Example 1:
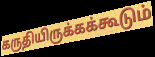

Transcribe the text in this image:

கருதியிருக்கக்கூடும்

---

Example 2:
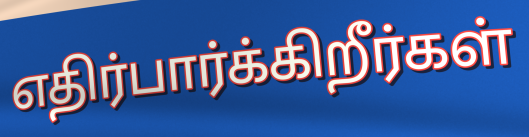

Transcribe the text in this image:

எதிர்பார்க்கிறீர்கள்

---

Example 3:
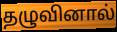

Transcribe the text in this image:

தழுவினால்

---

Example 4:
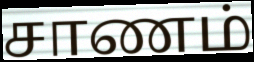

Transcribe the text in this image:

சாணம்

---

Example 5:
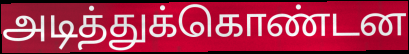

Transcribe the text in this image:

அடித்துக்கொண்டன